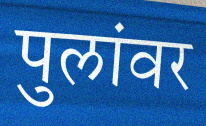
पुलांवर